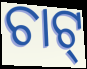
ଚାଟ୍